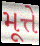
મૂત્તે